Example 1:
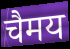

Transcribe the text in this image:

चैमय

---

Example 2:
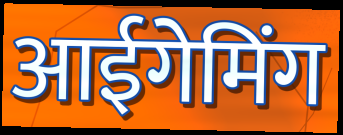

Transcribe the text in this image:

आईगेमिंग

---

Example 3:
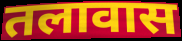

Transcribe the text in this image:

तलावास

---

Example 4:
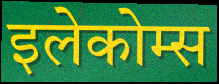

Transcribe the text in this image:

इलेकोम्स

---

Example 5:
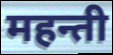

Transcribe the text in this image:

महन्ती